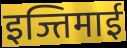
इज्तिमाई